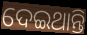
ଦେଇଥାନ୍ତି